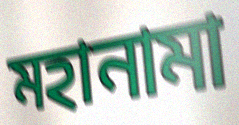
মহানামা